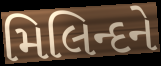
મિલિન્દને